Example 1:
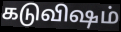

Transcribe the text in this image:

கடுவிஷம்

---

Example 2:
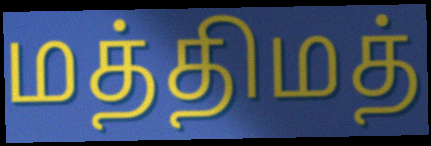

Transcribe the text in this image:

மத்திமத்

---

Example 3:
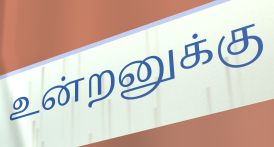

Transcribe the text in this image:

உன்றனுக்கு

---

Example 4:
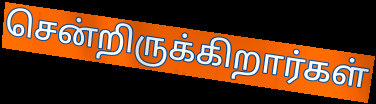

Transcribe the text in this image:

சென்றிருக்கிறார்கள்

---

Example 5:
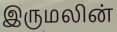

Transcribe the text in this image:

இருமலின்